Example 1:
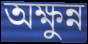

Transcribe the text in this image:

অক্ষুন্ন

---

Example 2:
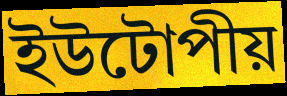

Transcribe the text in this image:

ইউটোপীয়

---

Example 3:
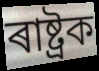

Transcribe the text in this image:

ৰাষ্ট্ৰক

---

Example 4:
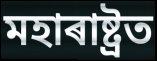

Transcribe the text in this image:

মহাৰাষ্ট্ৰত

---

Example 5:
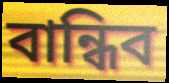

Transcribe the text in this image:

বান্ধিব